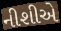
નીશીએ